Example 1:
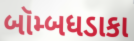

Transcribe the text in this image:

બૉમ્બધડાકા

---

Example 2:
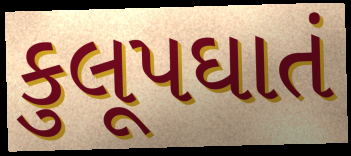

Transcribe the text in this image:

કુલૂપઘાતં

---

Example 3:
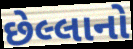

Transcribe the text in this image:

છેલ્લાનો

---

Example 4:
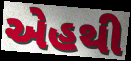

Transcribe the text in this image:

એહથી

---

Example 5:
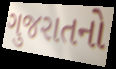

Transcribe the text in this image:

ગુજરાતનો